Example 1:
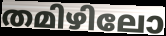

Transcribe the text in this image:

തമിഴിലോ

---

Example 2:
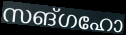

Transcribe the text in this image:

സങ്ഗഹോ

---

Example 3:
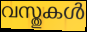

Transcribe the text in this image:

വസ്തുകൾ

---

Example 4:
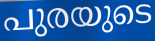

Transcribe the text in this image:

പുരയുടെ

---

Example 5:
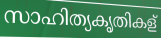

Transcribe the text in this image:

സാഹിത്യകൃതികള്